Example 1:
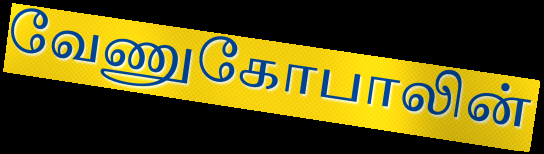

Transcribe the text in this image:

வேணுகோபாலின்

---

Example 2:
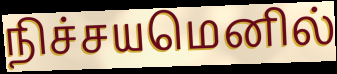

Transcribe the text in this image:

நிச்சயமெனில்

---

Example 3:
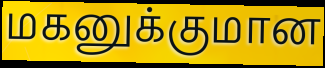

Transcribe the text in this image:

மகனுக்குமான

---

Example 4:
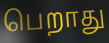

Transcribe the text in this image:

பெறாது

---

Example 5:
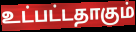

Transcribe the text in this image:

உட்பட்டதாகும்